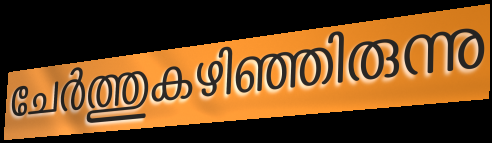
ചേർത്തുകഴിഞ്ഞിരുന്നു